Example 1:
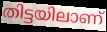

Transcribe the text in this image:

തിട്ടയിലാണ്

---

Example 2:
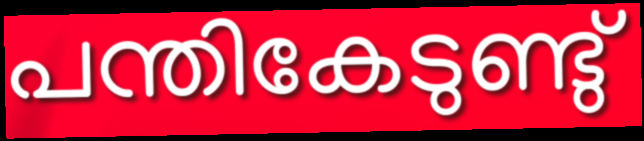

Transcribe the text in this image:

പന്തികേടുണ്ടു്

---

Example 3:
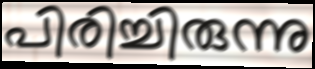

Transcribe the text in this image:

പിരിച്ചിരുന്നു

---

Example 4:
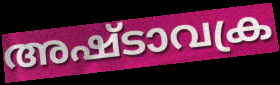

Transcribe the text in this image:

അഷ്ടാവക്ര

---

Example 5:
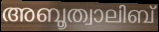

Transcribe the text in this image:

അബൂത്വാലിബ്